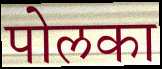
पोलका